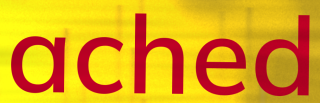
ached